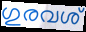
ഗുരവശ്